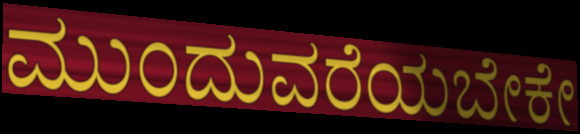
ಮುಂದುವರೆಯಬೇಕೇ